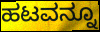
ಹಟವನ್ನೂ